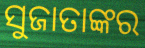
ସୁଜାତାଙ୍କର